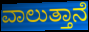
ವಾಲುತ್ತಾನೆ